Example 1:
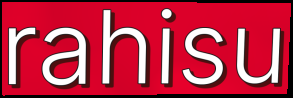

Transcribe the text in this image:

rahisu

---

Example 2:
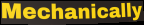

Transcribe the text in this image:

Mechanically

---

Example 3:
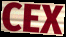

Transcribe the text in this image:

CEX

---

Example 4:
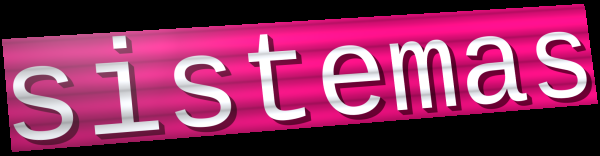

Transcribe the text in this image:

sistemas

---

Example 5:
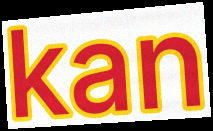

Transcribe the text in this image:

kan